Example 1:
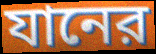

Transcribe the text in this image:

যানের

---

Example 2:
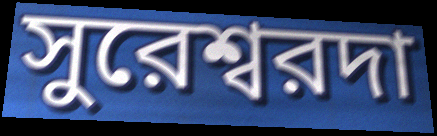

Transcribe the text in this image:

সুরেশ্বরদা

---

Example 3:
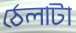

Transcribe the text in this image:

ঠেলাটা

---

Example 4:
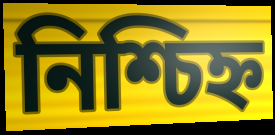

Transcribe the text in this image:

নিশ্চিহ্ন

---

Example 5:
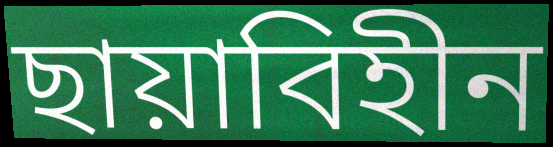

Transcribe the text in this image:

ছায়াবিহীন